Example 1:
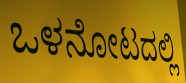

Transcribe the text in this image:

ಒಳನೋಟದಲ್ಲಿ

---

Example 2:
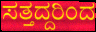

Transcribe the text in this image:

ಸತ್ತದ್ದರಿಂದ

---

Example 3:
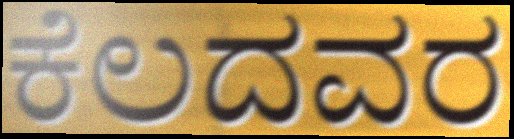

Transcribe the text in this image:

ಕೆಲದವರ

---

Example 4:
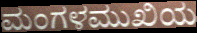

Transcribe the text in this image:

ಮಂಗಳಮುಖಿಯ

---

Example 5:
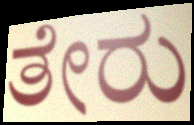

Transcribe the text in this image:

ತೇರು